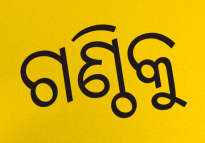
ଗଣ୍ଠିକୁ